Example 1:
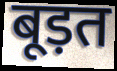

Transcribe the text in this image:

बूड़त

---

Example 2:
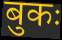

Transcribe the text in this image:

बुकः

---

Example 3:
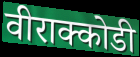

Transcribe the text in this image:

वीराक्कोडी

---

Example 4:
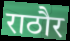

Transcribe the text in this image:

राठौर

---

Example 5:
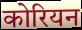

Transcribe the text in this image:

कोरियन